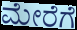
ಮೇರೆಗೆ